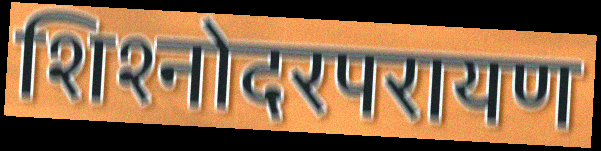
शिश्नोदरपरायण